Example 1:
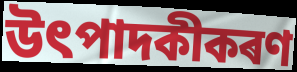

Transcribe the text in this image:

উৎপাদকীকৰণ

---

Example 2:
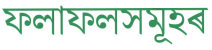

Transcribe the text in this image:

ফলাফলসমূহৰ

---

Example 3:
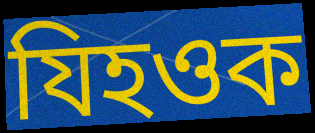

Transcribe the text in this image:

যিহওক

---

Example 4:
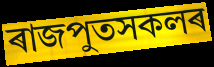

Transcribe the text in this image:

ৰাজপুতসকলৰ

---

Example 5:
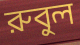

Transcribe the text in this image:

ৰুবুল